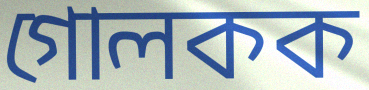
গোলকক